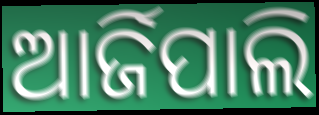
ଆର୍ଜିପାଲି